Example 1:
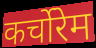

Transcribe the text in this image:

कर्चोरेम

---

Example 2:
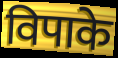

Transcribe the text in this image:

विपाके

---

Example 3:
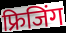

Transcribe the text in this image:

फ्रिजिंग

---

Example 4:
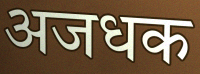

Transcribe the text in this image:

अजधक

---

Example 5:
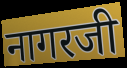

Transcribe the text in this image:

नागरजी